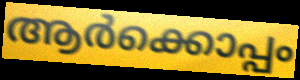
ആർക്കൊപ്പം